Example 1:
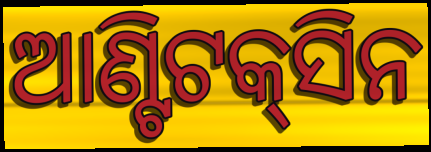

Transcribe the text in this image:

ଆଣ୍ଟିଟକ୍‌ସିନ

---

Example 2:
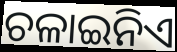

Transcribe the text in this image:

ଚଳାଇନିଏ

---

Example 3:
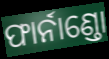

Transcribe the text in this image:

ଫାର୍ନାଣ୍ଡୋ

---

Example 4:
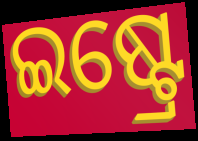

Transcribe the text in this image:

ଇଷ୍ଟ୍ରେ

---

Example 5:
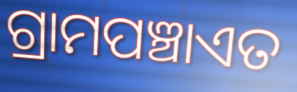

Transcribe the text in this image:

ଗ୍ରାମପଞ୍ଚାଏତ